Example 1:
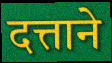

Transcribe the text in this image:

दत्ताने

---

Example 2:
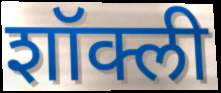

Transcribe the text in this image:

शॉक्ली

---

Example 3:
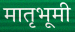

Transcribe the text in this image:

मातृभूमी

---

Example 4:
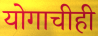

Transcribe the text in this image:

योगाचीही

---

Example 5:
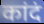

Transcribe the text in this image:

कांदं